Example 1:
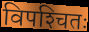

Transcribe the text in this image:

विपश्चितः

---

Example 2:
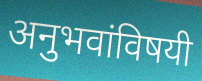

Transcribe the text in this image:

अनुभवांविषयी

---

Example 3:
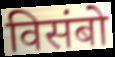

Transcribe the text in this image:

विसंबो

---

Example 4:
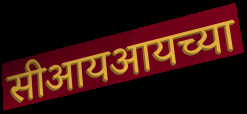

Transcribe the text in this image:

सीआयआयच्या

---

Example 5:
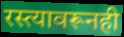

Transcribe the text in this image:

रस्त्यावरूनही